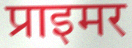
प्राइमर